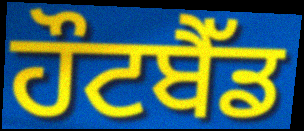
ਹੌਟਬੈੱਡ